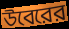
উবেরের